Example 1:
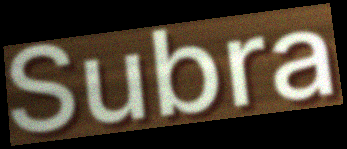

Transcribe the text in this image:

Subra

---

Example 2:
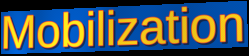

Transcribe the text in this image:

Mobilization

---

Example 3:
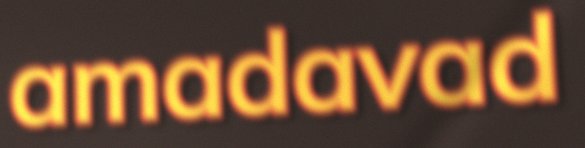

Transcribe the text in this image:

amadavad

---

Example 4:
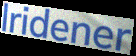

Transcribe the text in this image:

lridener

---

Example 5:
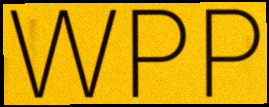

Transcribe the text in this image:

WPP